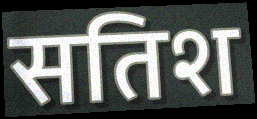
सतिश